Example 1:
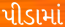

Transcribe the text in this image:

પીડામાં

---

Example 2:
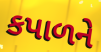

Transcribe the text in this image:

કપાળને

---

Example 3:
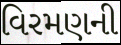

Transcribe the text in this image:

વિરમણની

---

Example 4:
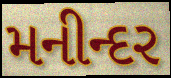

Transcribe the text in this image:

મનીન્દર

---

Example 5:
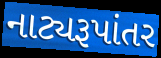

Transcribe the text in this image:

નાટ્યરૂપાંતર